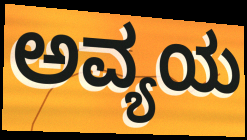
ಅವ್ಯಯ